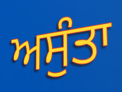
ਅਸੁੰਤਾ